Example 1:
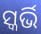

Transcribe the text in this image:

ସ୍କର୍ଭି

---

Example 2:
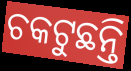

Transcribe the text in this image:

ଚକଟୁଛନ୍ତି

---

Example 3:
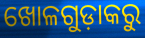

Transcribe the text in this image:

ଖୋଳଗୁଡ଼ାକରୁ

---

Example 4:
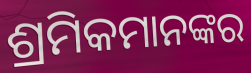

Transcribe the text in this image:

ଶ୍ରମିକମାନଙ୍କର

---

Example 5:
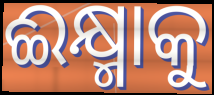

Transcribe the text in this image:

ଈକ୍ଷ୍ମାକୁ